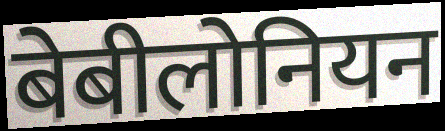
बेबीलोनियन